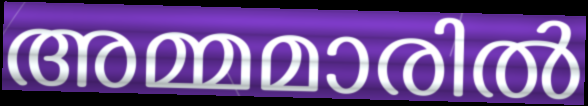
അമ്മമാരിൽ